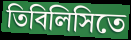
তিবিলিসিতে